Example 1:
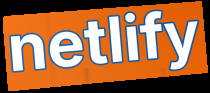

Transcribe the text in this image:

netlify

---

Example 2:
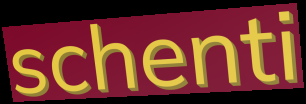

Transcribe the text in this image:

schenti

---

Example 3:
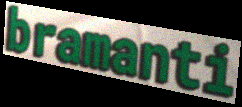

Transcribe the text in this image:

bramanti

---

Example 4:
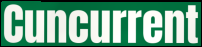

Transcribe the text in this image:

Cuncurrent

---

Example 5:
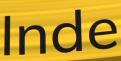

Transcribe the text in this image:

Inde